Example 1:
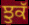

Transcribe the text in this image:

ਝੁਕੱ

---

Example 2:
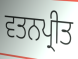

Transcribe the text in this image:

ਵਤਨਪ੍ਰੀਤ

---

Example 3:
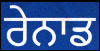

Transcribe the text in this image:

ਰੇਨਾਡ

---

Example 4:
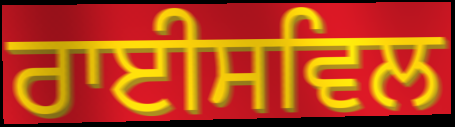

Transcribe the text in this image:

ਰਾਈਸਵਿਲ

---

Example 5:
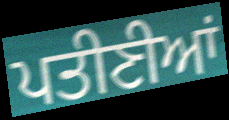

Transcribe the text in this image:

ਪਤੀਣੀਆਂ